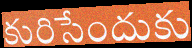
కురిసేందుకు